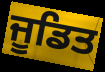
ਜੂਡਿਤ